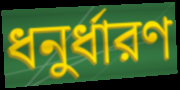
ধনুর্ধারণ